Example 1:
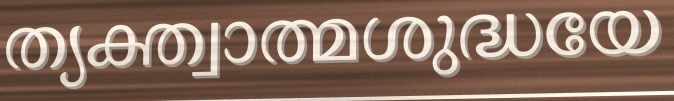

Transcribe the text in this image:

ത്യക്ത്വാത്മശുദ്ധയേ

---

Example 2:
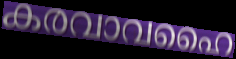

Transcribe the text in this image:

കരവാവഹൈ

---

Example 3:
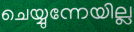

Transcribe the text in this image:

ചെയ്യുന്നേയില്ല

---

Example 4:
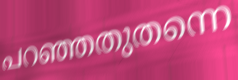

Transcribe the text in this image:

പറഞ്ഞതുതന്നെ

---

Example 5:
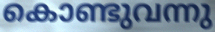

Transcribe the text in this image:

കൊണ്ടുവന്നു